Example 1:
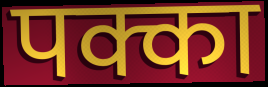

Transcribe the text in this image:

पक्का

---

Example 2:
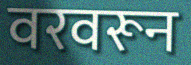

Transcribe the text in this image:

वरवरून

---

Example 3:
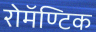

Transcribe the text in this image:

रोमॅण्टिक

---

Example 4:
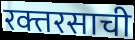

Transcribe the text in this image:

रक्तरसाची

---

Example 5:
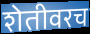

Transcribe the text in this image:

शेतीवरच